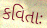
કવિતાઃ